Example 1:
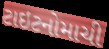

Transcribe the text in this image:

ટાઇટનોમાચી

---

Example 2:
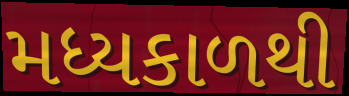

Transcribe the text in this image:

મધ્યકાળથી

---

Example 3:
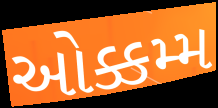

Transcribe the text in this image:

ઓક્કમ્મ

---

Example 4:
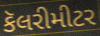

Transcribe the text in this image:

કૅલરીમીટર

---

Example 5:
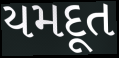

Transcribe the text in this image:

યમદૂત